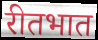
रीतभात